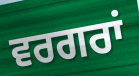
ਵਰਗਰਾਂ